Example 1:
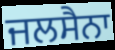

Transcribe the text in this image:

ਜਲਸੈਨਾ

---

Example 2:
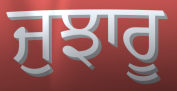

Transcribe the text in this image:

ਜੁਝਾਰੂ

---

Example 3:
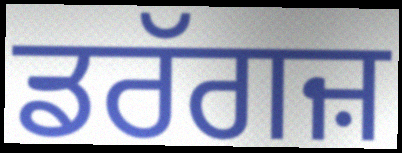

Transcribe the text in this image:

ਡਰੱਗਜ਼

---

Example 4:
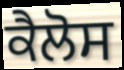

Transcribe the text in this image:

ਕੈਲੋਸ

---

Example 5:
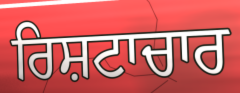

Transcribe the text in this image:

ਰਿਸ਼ਟਾਚਾਰ